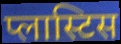
प्लास्टिस